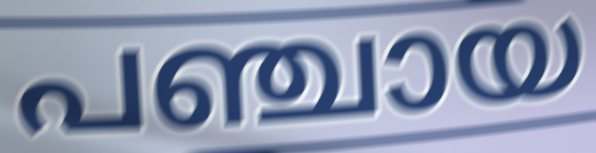
പഞ്ചായ